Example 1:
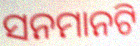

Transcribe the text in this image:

ସନମାନଟି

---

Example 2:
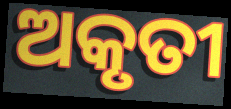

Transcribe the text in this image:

ଅକୃତୀ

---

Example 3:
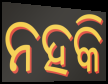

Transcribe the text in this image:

ନହକି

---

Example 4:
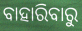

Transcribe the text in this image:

ବାହାରିବାରୁ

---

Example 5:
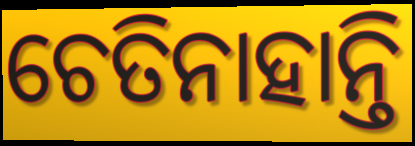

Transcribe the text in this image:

ଚେତିନାହାନ୍ତି